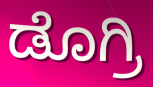
ಡೊಗ್ರಿ